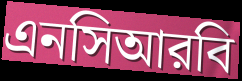
এনসিআরবি